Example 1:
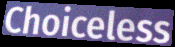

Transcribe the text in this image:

Choiceless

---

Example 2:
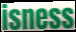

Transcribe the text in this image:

isness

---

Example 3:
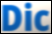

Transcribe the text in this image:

Dic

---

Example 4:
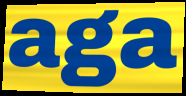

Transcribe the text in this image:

aga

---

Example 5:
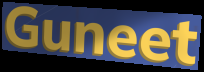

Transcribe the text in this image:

Guneet